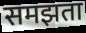
समझता